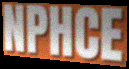
NPHCE